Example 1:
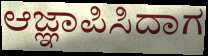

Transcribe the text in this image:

ಆಜ್ಞಾಪಿಸಿದಾಗ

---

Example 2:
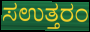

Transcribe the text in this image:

ಸಉತ್ತರಂ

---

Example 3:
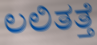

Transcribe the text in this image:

ಲಲಿತತ್ತೆ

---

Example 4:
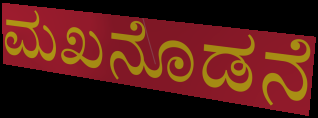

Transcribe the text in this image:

ಮಖನೊಡನೆ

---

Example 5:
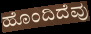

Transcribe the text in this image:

ಹೊಂದಿದೆವು